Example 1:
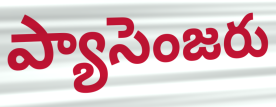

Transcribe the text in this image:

ప్యాసెంజరు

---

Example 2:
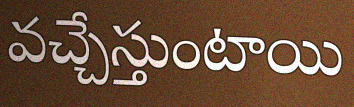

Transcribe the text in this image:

వచ్చేస్తుంటాయి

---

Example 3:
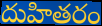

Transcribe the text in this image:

దుహితరం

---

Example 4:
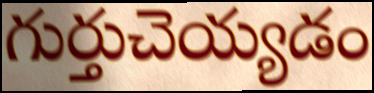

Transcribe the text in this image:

గుర్తుచెయ్యడం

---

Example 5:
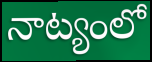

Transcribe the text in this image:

నాట్యంలో